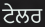
ਟੇਲਰ